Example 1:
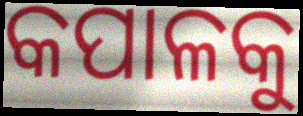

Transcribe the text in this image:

କପାଳକୁ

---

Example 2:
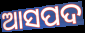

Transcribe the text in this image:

ଆସପଦ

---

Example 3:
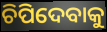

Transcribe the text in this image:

ଚିପିଦେବାକୁ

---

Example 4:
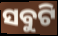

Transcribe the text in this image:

ସବୁଟି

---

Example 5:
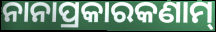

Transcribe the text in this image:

ନାନାପ୍ରକାରକଣାମ୍